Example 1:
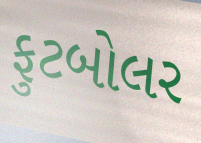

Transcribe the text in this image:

ફુટબોલર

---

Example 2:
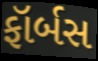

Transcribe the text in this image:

ફૉર્બસ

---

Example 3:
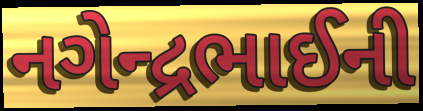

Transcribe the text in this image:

નગેન્દ્રભાઈની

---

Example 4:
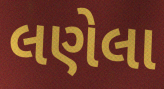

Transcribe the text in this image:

લણેલા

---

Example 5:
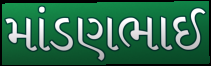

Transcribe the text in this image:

માંડણભાઈ